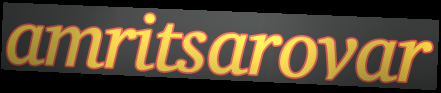
amritsarovar